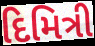
દિમિત્રી